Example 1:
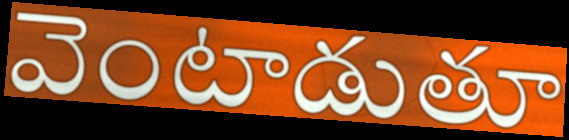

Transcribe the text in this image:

వెంటాడుతూ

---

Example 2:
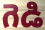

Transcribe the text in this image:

గెడి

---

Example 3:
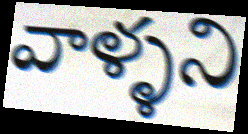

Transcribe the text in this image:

వాళ్ళని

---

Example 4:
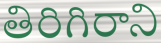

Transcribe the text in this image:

తిరిగిరాని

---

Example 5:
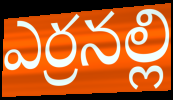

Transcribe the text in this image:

ఎర్రనల్లి